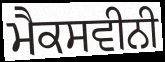
ਮੈਕਸਵੀਨੀ